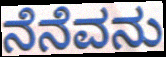
ನೆನೆವನು